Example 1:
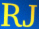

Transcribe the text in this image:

RJ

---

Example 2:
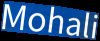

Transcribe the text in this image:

Mohali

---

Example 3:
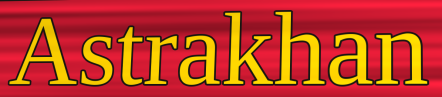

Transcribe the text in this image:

Astrakhan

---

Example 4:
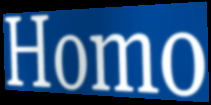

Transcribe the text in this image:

Homo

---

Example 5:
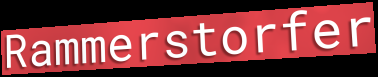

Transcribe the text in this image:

Rammerstorfer